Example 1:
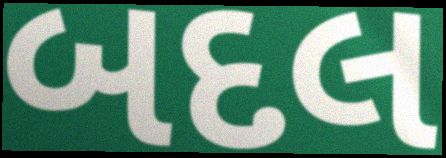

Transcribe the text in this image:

બદલ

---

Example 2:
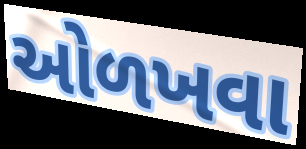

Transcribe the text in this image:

ઓળખવા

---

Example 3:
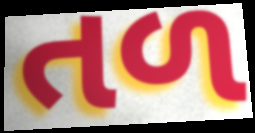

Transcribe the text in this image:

તળ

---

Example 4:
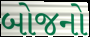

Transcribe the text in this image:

બોજનો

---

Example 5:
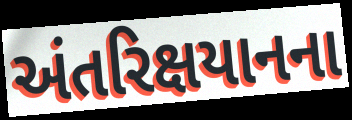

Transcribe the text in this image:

અંતરિક્ષયાનના